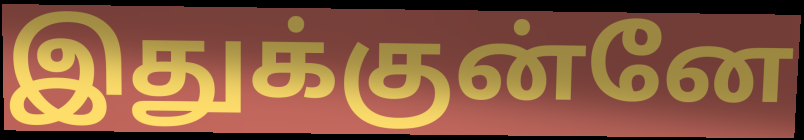
இதுக்குன்னே